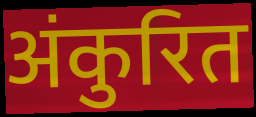
अंकुरित